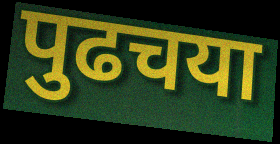
पुढचया